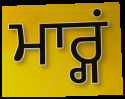
ਮਾਰ੍ਗਂ